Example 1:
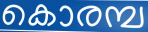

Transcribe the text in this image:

കൊരമ്പ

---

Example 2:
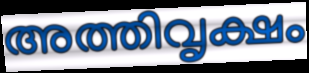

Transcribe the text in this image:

അത്തിവൃക്ഷം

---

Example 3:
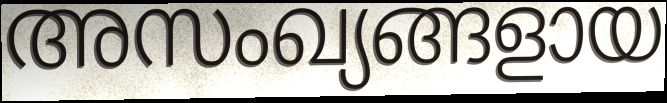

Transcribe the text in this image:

അസംഖ്യങ്ങളായ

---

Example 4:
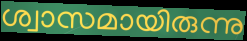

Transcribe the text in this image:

ശ്വാസമായിരുന്നു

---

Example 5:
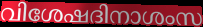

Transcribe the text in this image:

വിശേഷദിനാശംസ